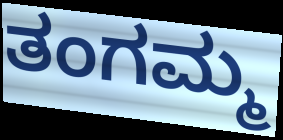
ತಂಗಮ್ಮ